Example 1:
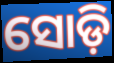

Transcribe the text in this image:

ସୋଡ଼ି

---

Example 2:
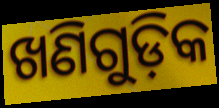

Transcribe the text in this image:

ଖଣିଗୁଡ଼ିକ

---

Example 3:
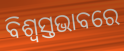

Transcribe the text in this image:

ବିଶ୍ୱସ୍ତଭାବରେ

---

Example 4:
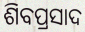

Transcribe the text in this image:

ଶିବପ୍ରସାଦ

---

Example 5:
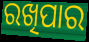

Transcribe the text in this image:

ରଖିପାର